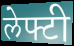
लेफ्टी